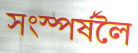
সংস্পৰ্ষলৈ